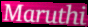
Maruthi